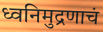
ध्वनिमुद्रणाचं